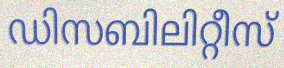
ഡിസബിലിറ്റീസ്